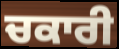
ਚਕਾਰੀ